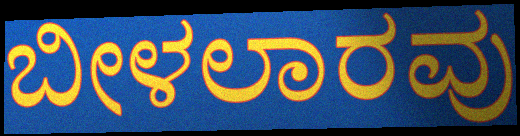
ಬೀಳಲಾರವು